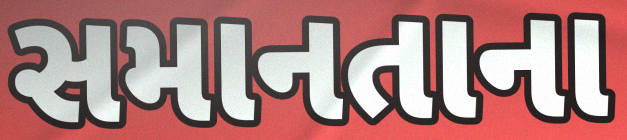
સમાનતાના